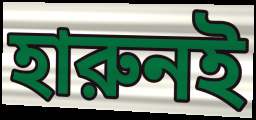
হারুনই